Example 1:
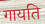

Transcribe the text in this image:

गायति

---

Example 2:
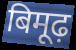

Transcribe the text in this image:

बिमूढ़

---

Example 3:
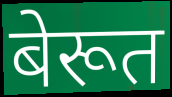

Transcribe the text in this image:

बेरूत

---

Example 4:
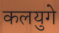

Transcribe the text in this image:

कलयुगे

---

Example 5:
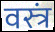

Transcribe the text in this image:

वस्त्रं